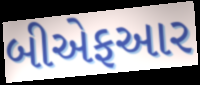
બીએફઆર